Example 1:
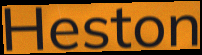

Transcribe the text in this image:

Heston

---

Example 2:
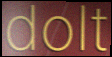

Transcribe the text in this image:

dolt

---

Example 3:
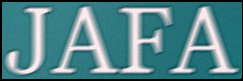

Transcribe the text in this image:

JAFA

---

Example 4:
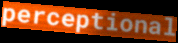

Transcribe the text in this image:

perceptional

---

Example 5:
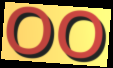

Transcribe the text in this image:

OO